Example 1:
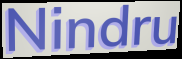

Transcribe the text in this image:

Nindru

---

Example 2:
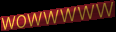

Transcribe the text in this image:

wowwwww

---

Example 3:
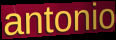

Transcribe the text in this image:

antonio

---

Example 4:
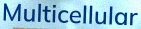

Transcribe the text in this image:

Multicellular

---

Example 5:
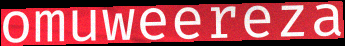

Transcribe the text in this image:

omuweereza